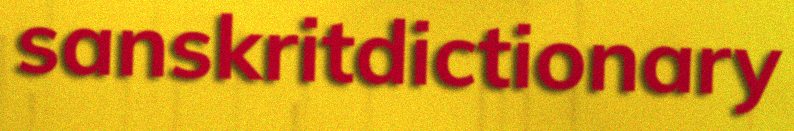
sanskritdictionary